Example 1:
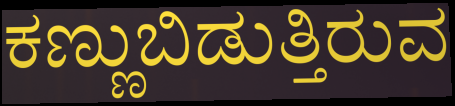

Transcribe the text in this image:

ಕಣ್ಣುಬಿಡುತ್ತಿರುವ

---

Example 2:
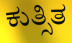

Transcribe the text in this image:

ಕುತ್ಸಿತ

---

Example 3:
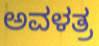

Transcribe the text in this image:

ಅವಳತ್ರ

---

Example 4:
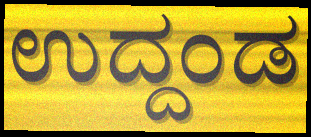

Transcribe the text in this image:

ಉದ್ದಂಡ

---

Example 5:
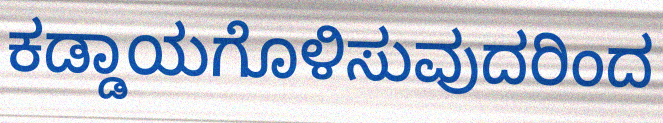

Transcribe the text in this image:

ಕಡ್ಡಾಯಗೊಳಿಸುವುದರಿಂದ